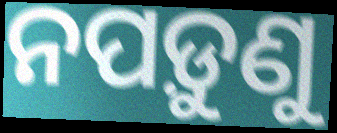
ନପଡ଼ୁଣୁ